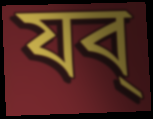
যব্